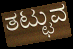
ತಟ್ಟುವ